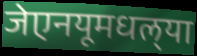
जेएनयूमधल्या